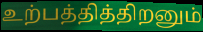
உற்பத்தித்திறனும்